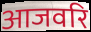
आजवरि